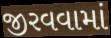
જીરવવામાં